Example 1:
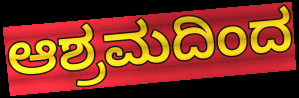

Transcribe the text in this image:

ಆಶ್ರಮದಿಂದ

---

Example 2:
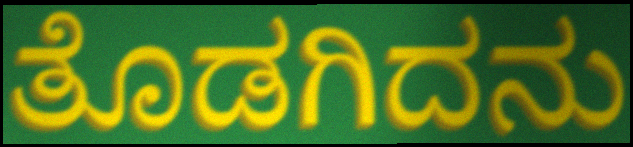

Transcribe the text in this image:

ತೊಡಗಿದನು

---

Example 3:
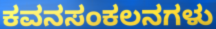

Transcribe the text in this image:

ಕವನಸಂಕಲನಗಳು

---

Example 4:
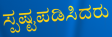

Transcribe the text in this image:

ಸ್ಪಷ್ಟಪಡಿಸಿದರು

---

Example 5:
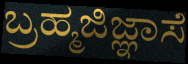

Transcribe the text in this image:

ಬ್ರಹ್ಮಜಿಜ್ಞಾಸೆ